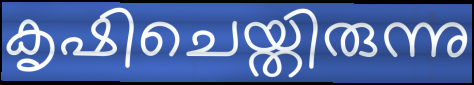
കൃഷിചെയ്തിരുന്നു